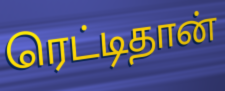
ரெட்டிதான்